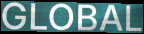
GLOBAL